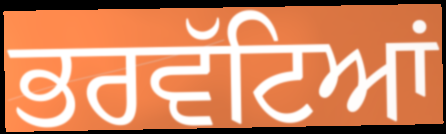
ਭਰਵੱਟਿਆਂ